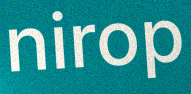
nirop